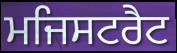
ਮਜਿਸਟਰੈਟ